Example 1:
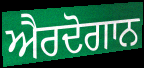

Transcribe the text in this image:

ਐਰਦੋਗਾਨ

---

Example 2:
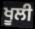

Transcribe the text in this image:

ਖੂਲੀ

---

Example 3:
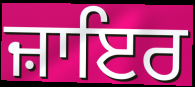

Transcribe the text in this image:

ਜ਼ਾਇਰ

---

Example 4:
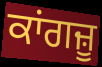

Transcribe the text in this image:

ਕਾਂਗਜ਼ੂ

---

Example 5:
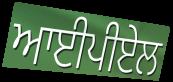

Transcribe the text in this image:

ਆਈਪੀਏਲ